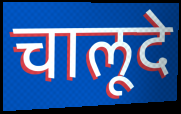
चालूदे